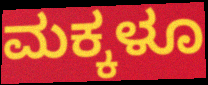
ಮಕ್ಕಳೂ